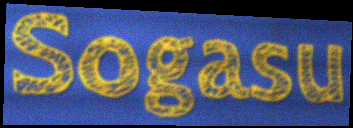
Sogasu